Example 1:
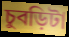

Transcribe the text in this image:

চুবড়িটা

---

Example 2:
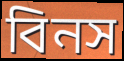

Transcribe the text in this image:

বিনস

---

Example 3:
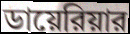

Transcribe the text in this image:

ডায়েরিয়ার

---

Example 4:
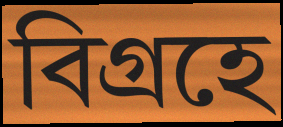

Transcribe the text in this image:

বিগ্রহে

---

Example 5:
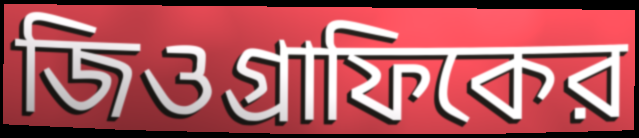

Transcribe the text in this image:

জিওগ্রাফিকের